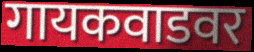
गायकवाडवर